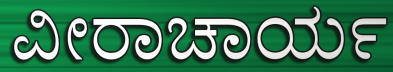
ವೀರಾಚಾರ್ಯ